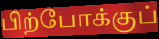
பிற்போக்குப்